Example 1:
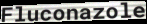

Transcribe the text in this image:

Fluconazole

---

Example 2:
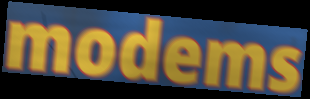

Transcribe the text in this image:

modems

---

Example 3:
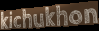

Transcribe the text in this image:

kichukhon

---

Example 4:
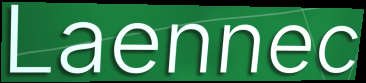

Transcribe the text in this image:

Laennec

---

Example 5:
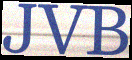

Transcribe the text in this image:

JVB